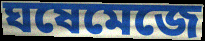
ঘষেমেজে